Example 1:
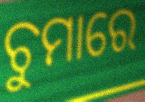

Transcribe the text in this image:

ଚୁମାରେ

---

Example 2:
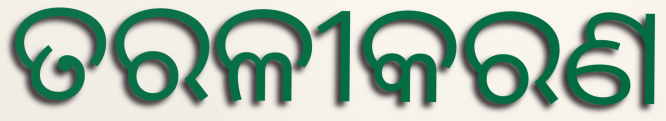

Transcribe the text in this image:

ତରଳୀକରଣ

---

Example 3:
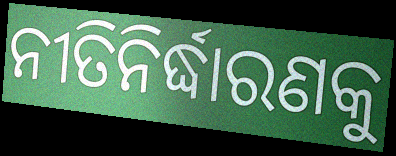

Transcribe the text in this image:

ନୀତିନିର୍ଦ୍ଧାରଣକୁ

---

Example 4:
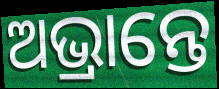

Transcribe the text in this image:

ଅଭ୍ରାନ୍ତେ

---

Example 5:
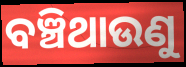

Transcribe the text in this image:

ବଞ୍ଚିଥାଉଣୁ